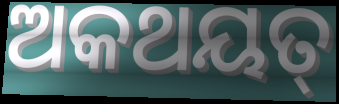
ଅକଥୟତ୍